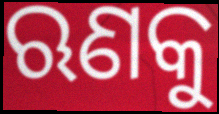
ଋଣକୁ